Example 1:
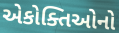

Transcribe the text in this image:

એકોક્તિઓનો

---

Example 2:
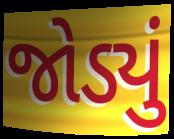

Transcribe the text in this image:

જોડ્યું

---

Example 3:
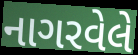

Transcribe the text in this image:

નાગરવેલે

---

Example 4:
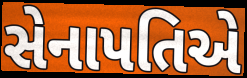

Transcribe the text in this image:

સેનાપતિએ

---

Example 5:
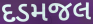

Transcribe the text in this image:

દડમજલ